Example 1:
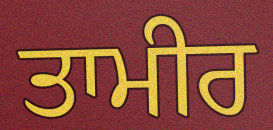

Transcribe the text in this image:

ਤਾਮੀਰ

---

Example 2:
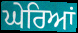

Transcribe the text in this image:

ਘੇਰਿਆਂ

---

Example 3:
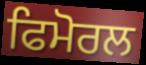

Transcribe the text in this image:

ਫਿਮੋਰਲ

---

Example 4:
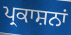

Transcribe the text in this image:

ਪ੍ਰਕਾਸ਼ਨਾਂ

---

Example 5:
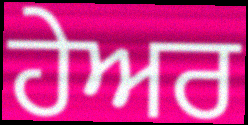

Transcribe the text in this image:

ਹੇਅਰ